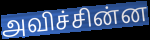
அவிச்சின்ன